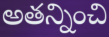
అతన్నించి